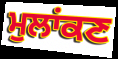
ਮੁਲਾਂਕਣ